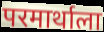
परमार्थाला